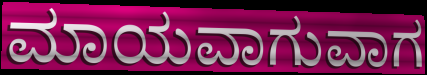
ಮಾಯವಾಗುವಾಗ